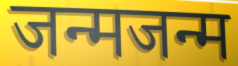
जन्मजन्म